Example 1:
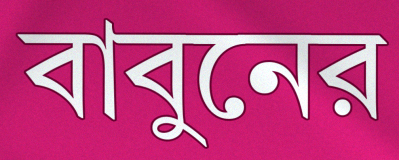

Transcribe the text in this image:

বাবুনের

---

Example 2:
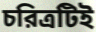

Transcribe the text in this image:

চরিত্রটিই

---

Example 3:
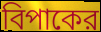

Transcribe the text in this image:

বিপাকের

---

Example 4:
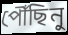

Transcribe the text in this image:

পৌঁছিনু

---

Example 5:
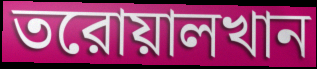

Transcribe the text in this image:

তরোয়ালখান